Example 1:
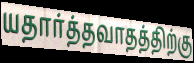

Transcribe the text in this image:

யதார்த்தவாதத்திற்கு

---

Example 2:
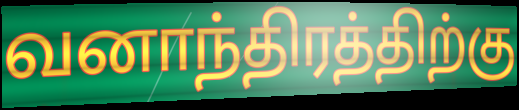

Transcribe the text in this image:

வனாந்திரத்திற்கு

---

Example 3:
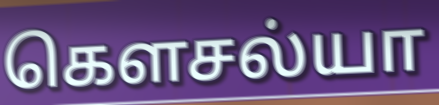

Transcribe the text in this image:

கௌசல்யா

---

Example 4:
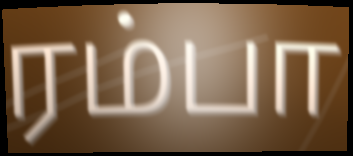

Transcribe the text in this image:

ரம்பா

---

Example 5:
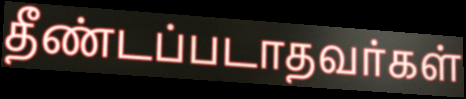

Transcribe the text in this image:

தீண்டப்படாதவர்கள்